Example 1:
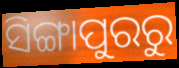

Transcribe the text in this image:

ସିଙ୍ଗାପୁରରୁ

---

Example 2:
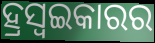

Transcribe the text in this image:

ହ୍ରସ୍ୱଇକାରର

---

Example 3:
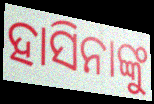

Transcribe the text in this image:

ହାସିନାଙ୍କୁ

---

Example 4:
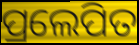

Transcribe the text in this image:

ପ୍ରଲେପିତ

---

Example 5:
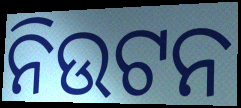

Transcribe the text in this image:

ନିଉଟନ